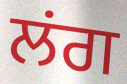
ਲਂਗ